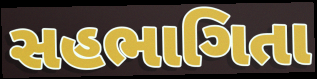
સહભાગિતા